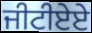
ਜੀਟੀਏਏ